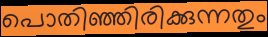
പൊതിഞ്ഞിരിക്കുന്നതും